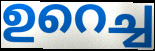
ഉറെച്ച